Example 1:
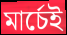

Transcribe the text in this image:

মার্চেই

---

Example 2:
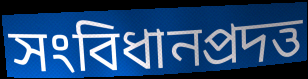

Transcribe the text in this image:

সংবিধানপ্রদত্ত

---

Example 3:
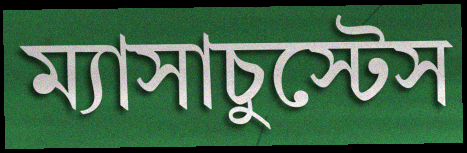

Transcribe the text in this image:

ম্যাসাচুস্টেস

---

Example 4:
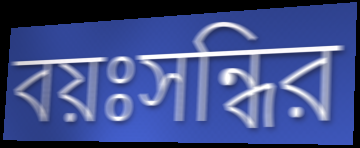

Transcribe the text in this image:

বয়ঃসন্ধির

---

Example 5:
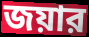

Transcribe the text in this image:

জয়ার